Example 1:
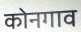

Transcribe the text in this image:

कोनगाव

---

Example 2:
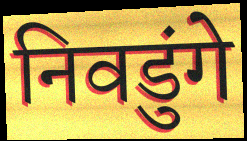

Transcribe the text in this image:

निवडुंगे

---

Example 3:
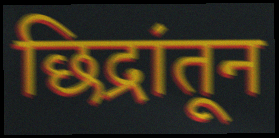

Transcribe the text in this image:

छिद्रांतून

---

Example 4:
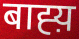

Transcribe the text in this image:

बाह्य़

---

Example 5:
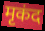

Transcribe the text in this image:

मृकंद